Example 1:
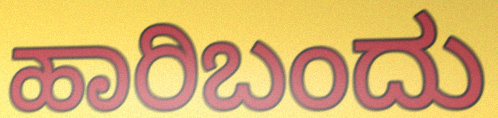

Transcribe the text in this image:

ಹಾರಿಬಂದು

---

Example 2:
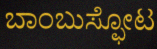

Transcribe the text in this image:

ಬಾಂಬುಸ್ಫೋಟ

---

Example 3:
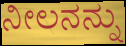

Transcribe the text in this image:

ನೀಲನನ್ನು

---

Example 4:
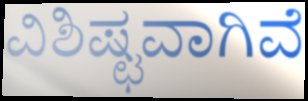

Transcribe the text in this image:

ವಿಶಿಷ್ಟವಾಗಿವೆ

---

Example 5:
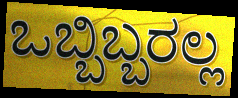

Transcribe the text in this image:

ಒಬ್ಬಿಬ್ಬರಲ್ಲ